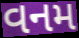
વનમ